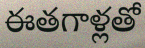
ఈతగాళ్లతో